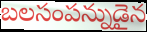
బలసంపన్నుడైన